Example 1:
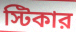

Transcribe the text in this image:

স্টিকার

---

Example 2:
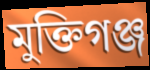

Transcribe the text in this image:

মুক্তিগঞ্জ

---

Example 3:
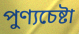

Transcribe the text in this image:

পুণ্যচেষ্টা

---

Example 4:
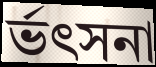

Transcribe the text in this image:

র্ভৎসনা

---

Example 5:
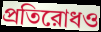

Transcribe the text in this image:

প্রতিরোধও